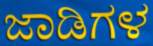
ಜಾಡಿಗಳ